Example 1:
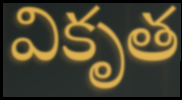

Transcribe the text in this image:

వికృత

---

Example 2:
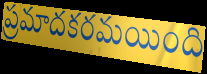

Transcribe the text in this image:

ప్రమాదకరమయింది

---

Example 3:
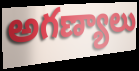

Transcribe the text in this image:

అగణ్యాలు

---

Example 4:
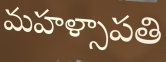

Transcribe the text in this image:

మహళ్సాపతి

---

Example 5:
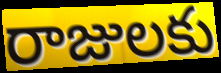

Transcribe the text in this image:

రాజులకు